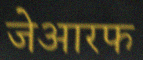
जेआरफ